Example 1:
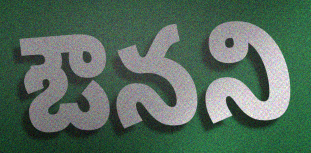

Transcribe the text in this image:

ఔనని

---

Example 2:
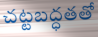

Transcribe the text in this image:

చట్టబద్ధతతో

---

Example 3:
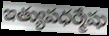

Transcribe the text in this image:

ఇత్యుపధర్మేషు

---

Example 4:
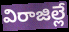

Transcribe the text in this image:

విరాజిల్లే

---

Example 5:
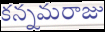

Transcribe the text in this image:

కన్నమరాజు